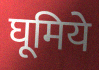
घूमिये